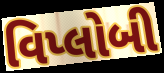
વિપ્લોબી